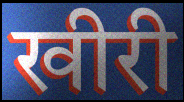
खीरी